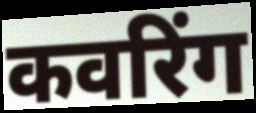
कवरिंग